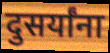
दुसर्यांना